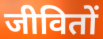
जीवितों